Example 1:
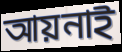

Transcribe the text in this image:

আয়নাই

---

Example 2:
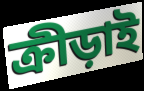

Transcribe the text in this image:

ক্রীড়াই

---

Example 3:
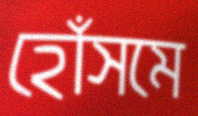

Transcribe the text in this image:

হোঁসমে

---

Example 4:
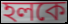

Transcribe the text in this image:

হলকে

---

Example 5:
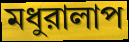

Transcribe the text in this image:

মধুরালাপ